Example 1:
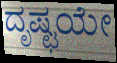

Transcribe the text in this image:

ದೃಷ್ಟಯೇ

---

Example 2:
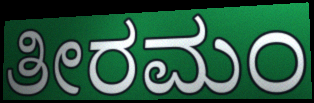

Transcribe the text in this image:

ತೀರಮಂ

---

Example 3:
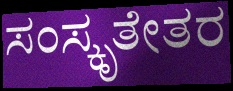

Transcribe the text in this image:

ಸಂಸ್ಕೃತೇತರ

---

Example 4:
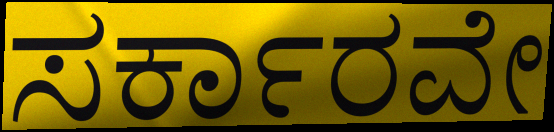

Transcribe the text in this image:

ಸರ್ಕಾರವೇ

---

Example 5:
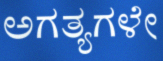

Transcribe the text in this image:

ಅಗತ್ಯಗಳೇ